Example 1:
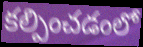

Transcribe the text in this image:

కల్పించడంలో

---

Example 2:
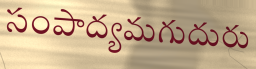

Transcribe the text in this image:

సంపాద్యమగుదురు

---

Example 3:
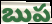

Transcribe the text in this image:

బుప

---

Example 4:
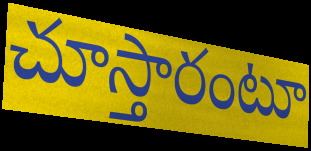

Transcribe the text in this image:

చూస్తారంటూ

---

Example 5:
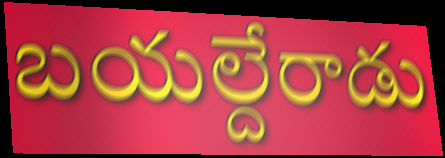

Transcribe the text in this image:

బయల్దేరాడు